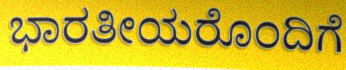
ಭಾರತೀಯರೊಂದಿಗೆ